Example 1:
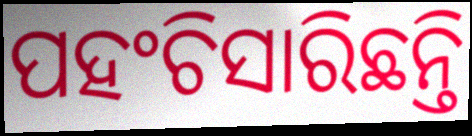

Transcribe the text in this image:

ପହଂଚିସାରିଛନ୍ତି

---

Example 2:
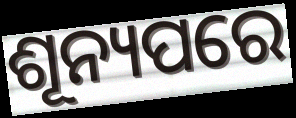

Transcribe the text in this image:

ଶୂନ୍ୟପରେ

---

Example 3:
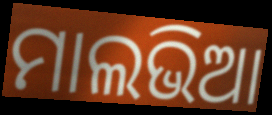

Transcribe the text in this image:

ମାଲଭିଆ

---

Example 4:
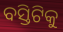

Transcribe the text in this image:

ବସ୍ତିଟିକୁ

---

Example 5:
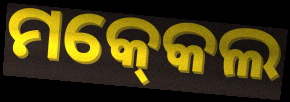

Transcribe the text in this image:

ମକ୍‍କେଲ